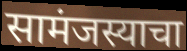
सामंजस्याचा